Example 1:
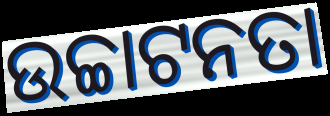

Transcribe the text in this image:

ଉଚ୍ଚାଟନତା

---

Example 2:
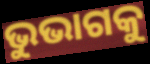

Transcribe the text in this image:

ଭୁଭାଗକୁ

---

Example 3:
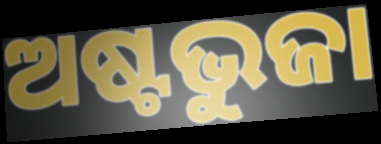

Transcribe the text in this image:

ଅଷ୍ଟଭୁଜା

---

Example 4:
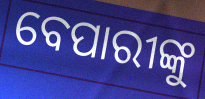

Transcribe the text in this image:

ବେପାରୀଙ୍କୁ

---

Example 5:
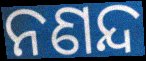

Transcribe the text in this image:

ନଣନ୍ଦ